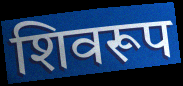
शिवरूप